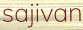
sajivan